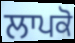
ਲਾਪਕੋ